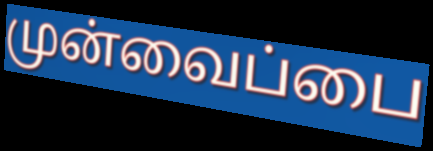
முன்வைப்பை